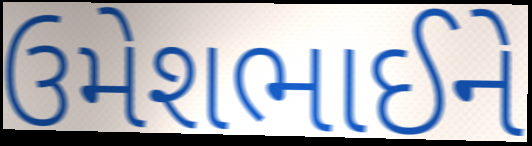
ઉમેશભાઈને